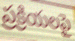
ప్రక్రియలపై